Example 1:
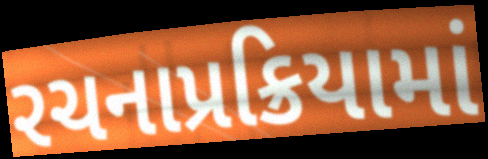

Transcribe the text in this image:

રચનાપ્રક્રિયામાં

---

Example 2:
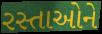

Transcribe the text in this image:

રસ્તાઓને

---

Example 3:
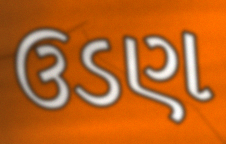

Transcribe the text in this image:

ઉડણ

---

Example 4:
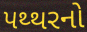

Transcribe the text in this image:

પથ્થરનો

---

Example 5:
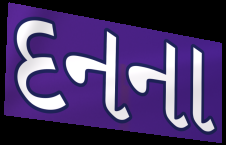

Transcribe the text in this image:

દનના